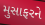
મુસાફરને